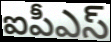
ఐపీఎస్